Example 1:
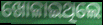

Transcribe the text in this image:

ଖୋଳାଇଥିଲେ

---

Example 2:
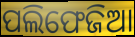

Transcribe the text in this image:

ପଲିଫେଜିଆ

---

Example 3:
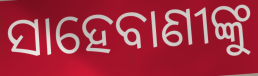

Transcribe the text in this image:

ସାହେବାଣୀଙ୍କୁ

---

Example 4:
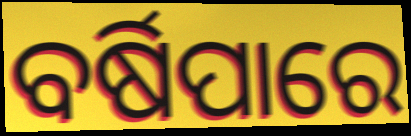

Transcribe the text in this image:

ବର୍ଷିପାରେ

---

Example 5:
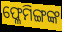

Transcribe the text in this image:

ଫ୍ଳେମିଙ୍ଗଙ୍କ